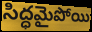
సిద్ధమైపోయి